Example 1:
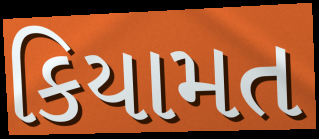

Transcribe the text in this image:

કિયામત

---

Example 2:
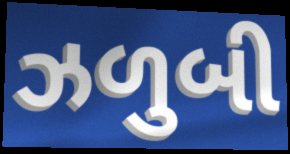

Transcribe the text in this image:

ઝળુબી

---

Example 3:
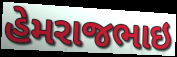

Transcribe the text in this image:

હેમરાજભાઇ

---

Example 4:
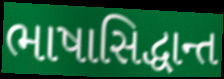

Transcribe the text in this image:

ભાષાસિદ્ધાન્ત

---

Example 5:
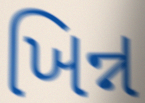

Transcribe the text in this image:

ખિન્ન